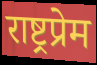
राष्ट्रप्रेम